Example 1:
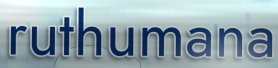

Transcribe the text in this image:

ruthumana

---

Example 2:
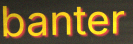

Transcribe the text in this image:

banter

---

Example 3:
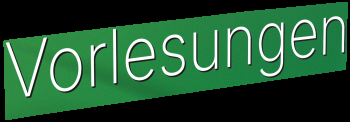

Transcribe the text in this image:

Vorlesungen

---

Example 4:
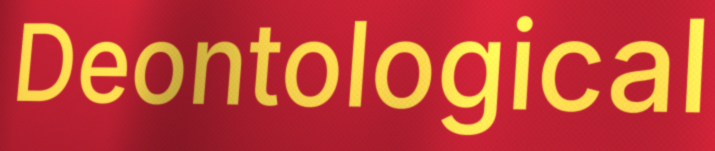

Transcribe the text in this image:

Deontological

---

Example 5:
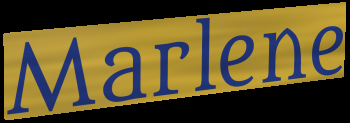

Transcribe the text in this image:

Marlene